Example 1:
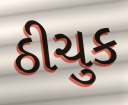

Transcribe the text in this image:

ઠીચુક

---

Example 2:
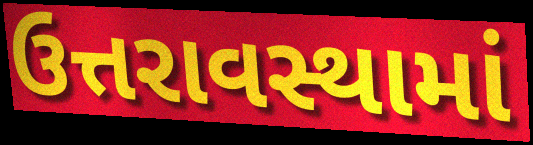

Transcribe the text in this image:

ઉત્તરાવસ્થામાં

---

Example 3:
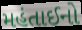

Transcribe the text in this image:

મહંતાઈનો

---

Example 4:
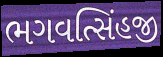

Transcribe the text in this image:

ભગવત્સિંહજી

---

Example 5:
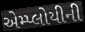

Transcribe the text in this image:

એમ્પ્લોયીની